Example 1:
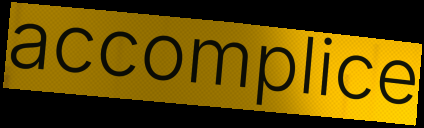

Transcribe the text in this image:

accomplice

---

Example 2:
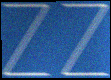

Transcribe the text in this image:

ZZ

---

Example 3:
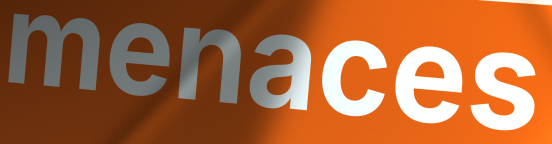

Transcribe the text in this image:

menaces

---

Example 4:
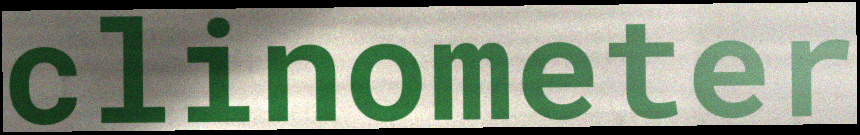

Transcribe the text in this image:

clinometer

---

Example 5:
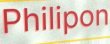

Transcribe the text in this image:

Philipon